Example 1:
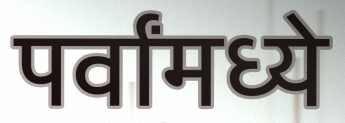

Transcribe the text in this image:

पर्वांमध्ये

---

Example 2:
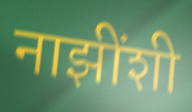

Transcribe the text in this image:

नाझींशी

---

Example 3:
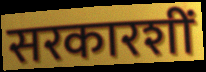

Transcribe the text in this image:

सरकारशीं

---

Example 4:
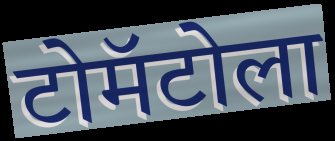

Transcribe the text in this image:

टोमॅटोला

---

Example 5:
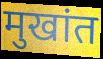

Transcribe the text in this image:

मुखांत